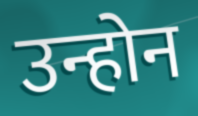
उन्होन